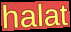
halat